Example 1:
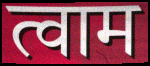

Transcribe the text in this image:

त्वाम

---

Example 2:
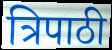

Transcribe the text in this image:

त्रिपाठी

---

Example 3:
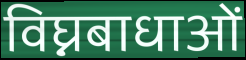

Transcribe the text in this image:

विघ्नबाधाओं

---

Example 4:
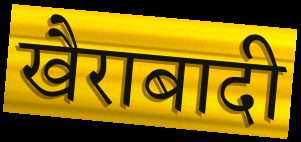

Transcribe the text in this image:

खैराबादी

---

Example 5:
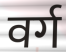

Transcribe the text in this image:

वर्ग